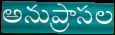
అనుప్రాసల